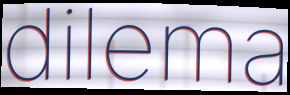
dilema